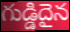
గుడ్డిదైన